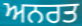
ਅਨਰਤ